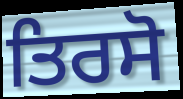
ਤਿਰਸੋ